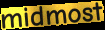
midmost